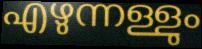
എഴുന്നള്ളും